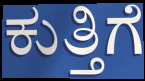
ಕುತ್ತಿಗೆ